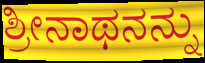
ಶ್ರೀನಾಥನನ್ನು